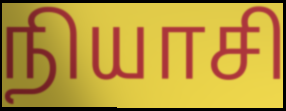
நியாசி